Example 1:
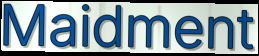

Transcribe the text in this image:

Maidment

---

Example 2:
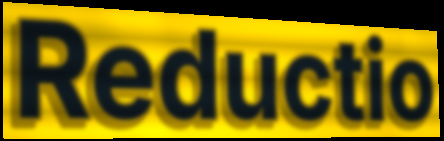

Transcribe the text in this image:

Reductio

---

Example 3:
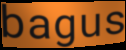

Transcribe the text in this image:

bagus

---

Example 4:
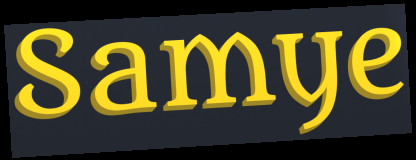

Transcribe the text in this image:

Samye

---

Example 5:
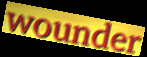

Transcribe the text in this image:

wounder